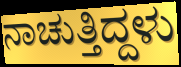
ನಾಚುತ್ತಿದ್ದಳು